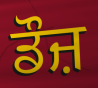
ਡੌਜ਼